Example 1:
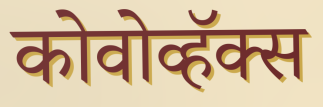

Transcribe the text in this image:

कोवोव्हॅक्स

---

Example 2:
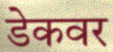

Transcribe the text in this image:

डेकवर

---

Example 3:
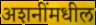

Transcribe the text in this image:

अशनींमधील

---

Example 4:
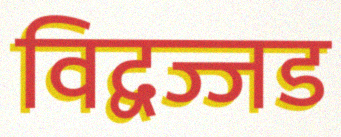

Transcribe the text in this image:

विद्वज्जड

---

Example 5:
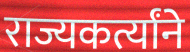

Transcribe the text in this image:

राज्यकर्त्यांने